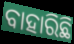
ବାହାରିଛି